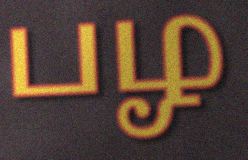
பழ